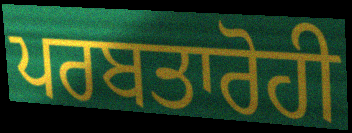
ਪਰਬਤਾਰੋਹੀ